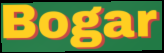
Bogar